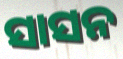
ସାସନ